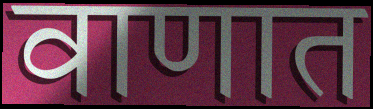
वाणात